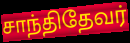
சாந்திதேவர்